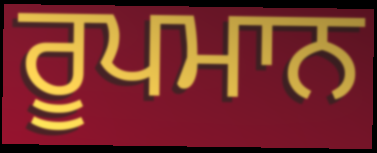
ਰੂਪਮਾਨ